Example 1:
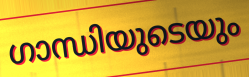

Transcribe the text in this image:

ഗാന്ധിയുടെയും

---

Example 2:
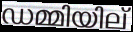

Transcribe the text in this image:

ഡമ്മിയില്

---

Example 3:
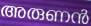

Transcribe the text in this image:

അരുണൻ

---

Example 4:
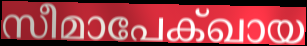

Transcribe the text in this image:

സീമാപേക്ഖായ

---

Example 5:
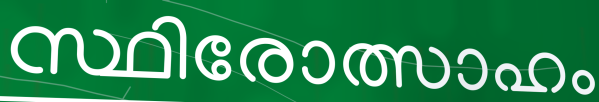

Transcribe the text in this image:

സ്ഥിരോത്സാഹം